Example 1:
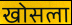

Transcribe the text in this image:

खोसला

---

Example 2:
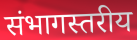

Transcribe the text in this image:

संभागस्तरीय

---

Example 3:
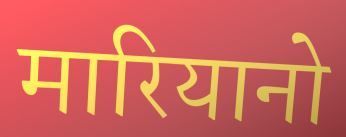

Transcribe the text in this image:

मारियानो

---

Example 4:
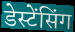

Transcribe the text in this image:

डेस्टेंसिंग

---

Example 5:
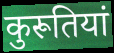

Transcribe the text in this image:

कुरूतियां